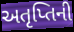
અતૃપ્તિની